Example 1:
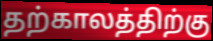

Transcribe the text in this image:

தற்காலத்திற்கு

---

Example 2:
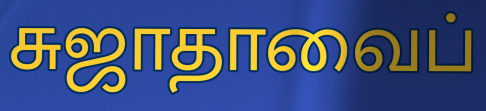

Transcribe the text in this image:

சுஜாதாவைப்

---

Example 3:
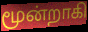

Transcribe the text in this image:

மூன்றாகி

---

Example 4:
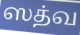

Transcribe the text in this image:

ஸத்வ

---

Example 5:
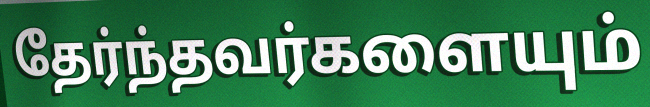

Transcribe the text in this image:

தேர்ந்தவர்களையும்